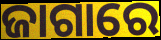
ଜାଗାରେ